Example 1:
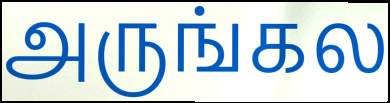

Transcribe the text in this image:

அருங்கல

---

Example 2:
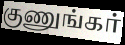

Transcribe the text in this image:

குணுங்கர்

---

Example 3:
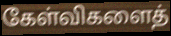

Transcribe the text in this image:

கேள்விகளைத்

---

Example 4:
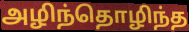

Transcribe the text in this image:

அழிந்தொழிந்த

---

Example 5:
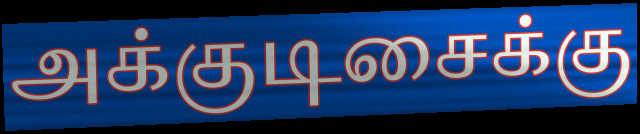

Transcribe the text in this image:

அக்குடிசைக்கு